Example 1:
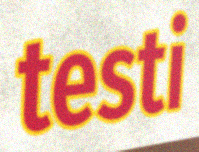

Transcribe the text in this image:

testi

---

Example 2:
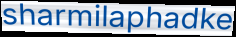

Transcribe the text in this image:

sharmilaphadke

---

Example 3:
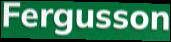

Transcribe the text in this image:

Fergusson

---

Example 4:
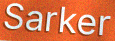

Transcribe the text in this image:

Sarker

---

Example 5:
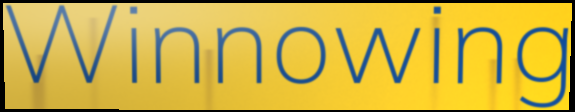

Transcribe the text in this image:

Winnowing